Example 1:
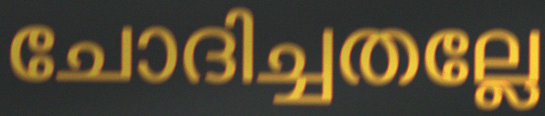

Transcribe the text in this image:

ചോദിച്ചതല്ലേ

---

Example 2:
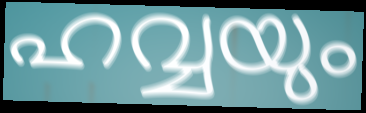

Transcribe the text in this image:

ഹവ്വയും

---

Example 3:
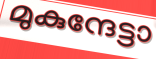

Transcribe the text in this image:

മുകുന്ദേട്ടാ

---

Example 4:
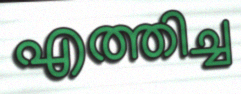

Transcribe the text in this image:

എത്തിച്ച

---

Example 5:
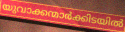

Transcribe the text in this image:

യുവാക്കന്മാർക്കിടയിൽ